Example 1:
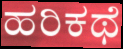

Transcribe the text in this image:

ಹರಿಕಥೆ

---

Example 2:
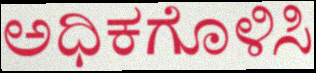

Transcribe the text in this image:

ಅಧಿಕಗೊಳಿಸಿ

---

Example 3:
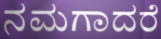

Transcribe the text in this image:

ನಮಗಾದರೆ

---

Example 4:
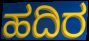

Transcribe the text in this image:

ಹದಿರ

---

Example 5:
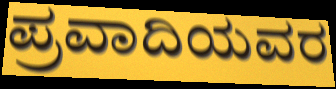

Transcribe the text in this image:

ಪ್ರವಾದಿಯವರ